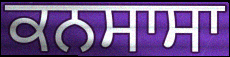
ਕਨਸਾਸਾ